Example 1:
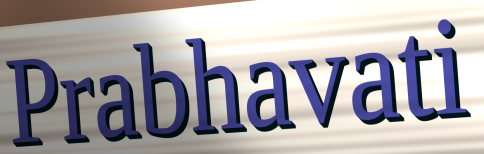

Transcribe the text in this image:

Prabhavati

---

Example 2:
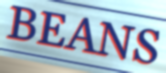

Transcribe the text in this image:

BEANS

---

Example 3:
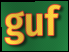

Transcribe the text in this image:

guf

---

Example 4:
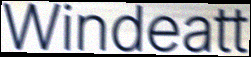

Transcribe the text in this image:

Windeatt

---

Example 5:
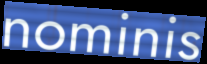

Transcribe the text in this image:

nominis